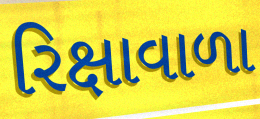
રિક્ષાવાળા